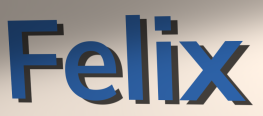
Felix